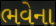
ભવેના